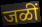
जळीं